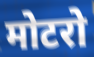
मोटरो